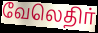
வேலெதிர்